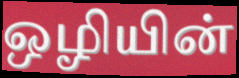
ஒழியின்